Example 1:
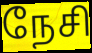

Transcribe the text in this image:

நேசி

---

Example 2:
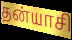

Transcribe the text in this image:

தன்யாசி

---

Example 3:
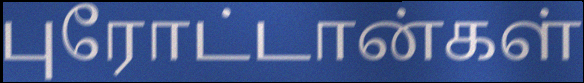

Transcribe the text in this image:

புரோட்டான்கள்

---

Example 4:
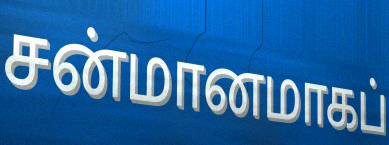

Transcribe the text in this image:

சன்மானமாகப்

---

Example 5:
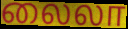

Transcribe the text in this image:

லைலா